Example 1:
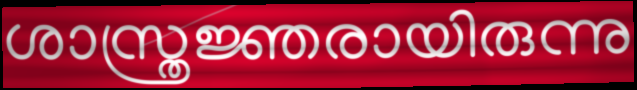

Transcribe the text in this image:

ശാസ്ത്രജ്ഞരായിരുന്നു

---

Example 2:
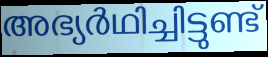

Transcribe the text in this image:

അഭ്യർഥിച്ചിട്ടുണ്ട്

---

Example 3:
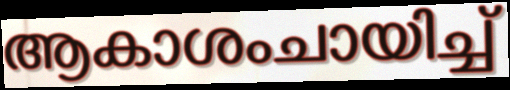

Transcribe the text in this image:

ആകാശംചായിച്ച്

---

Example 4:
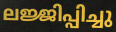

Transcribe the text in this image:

ലജ്ജിപ്പിച്ചു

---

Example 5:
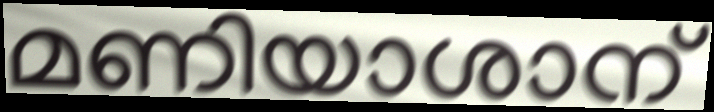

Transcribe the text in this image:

മണിയാശാന്